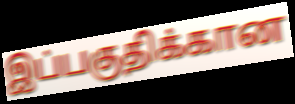
இப்பகுதிக்கான